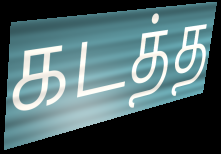
கடத்த